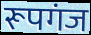
रूपगंज